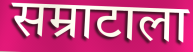
सम्राटाला